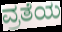
ವ್ರತೆಯ